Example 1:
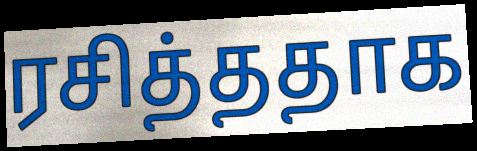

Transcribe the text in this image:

ரசித்ததாக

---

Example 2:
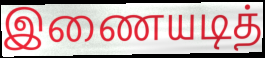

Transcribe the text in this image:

இணையடித்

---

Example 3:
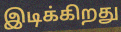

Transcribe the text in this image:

இடிக்கிறது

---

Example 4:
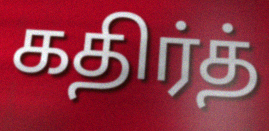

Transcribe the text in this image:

கதிர்த்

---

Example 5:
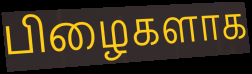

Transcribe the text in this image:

பிழைகளாக